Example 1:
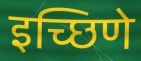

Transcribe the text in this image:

इच्छिणे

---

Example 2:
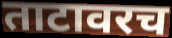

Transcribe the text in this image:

ताटावरच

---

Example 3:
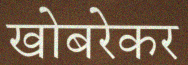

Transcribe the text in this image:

खोबरेकर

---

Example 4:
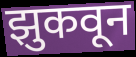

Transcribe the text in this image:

झुकवून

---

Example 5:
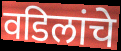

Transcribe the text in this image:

वडिलांचे